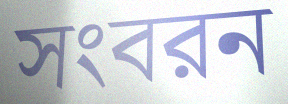
সংবরন